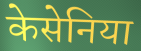
केसेनिया